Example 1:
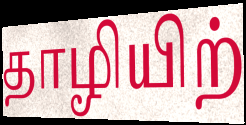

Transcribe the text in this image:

தாழியிற்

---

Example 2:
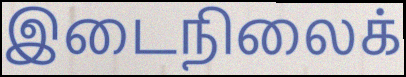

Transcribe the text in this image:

இடைநிலைக்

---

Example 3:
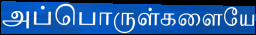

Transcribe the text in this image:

அப்பொருள்களையே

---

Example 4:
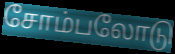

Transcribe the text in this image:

சோம்பலோடு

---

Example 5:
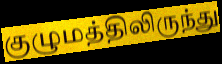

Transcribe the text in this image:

குழுமத்திலிருந்து